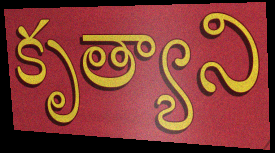
కృత్యాని